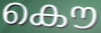
കൌ